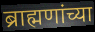
ब्राह्मणांच्या